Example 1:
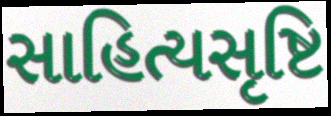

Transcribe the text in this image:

સાહિત્યસૃષ્ટિ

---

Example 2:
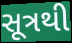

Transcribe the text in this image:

સૂત્રથી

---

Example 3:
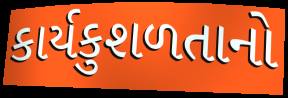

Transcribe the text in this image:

કાર્યકુશળતાનો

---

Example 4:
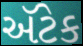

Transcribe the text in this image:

ઍટેક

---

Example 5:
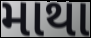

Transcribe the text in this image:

માથા